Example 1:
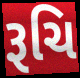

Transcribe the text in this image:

રૂચિ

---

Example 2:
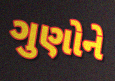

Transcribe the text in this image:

ગુણોને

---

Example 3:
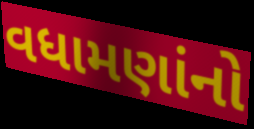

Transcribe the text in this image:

વધામણાંનો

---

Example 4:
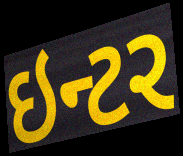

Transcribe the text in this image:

ઇન્ટર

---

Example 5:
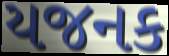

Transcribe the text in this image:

યજનક